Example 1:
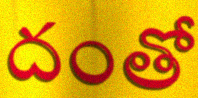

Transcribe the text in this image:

దంతో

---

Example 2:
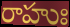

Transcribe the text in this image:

రాహుః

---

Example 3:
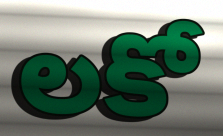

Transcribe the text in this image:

లకో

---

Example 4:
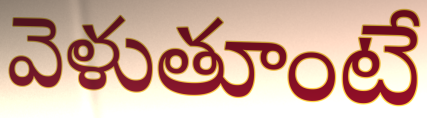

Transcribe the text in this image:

వెళుతూంటే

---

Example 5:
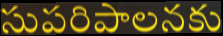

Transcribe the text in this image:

సుపరిపాలనకు